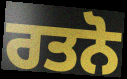
ਰਤਨੋ